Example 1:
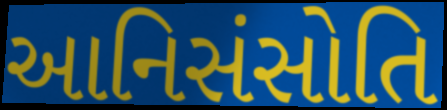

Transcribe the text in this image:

આનિસંસોતિ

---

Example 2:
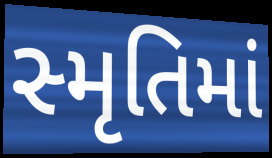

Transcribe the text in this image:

સ્મૃતિમાં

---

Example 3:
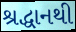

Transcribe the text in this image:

શ્રદ્ધાનથી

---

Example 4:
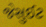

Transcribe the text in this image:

જેસુઈટ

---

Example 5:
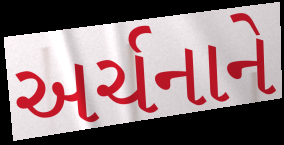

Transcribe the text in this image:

અર્ચનાને